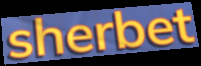
sherbet